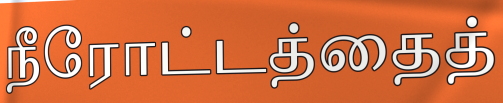
நீரோட்டத்தைத்